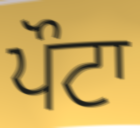
ਪੌਟਾ